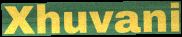
Xhuvani